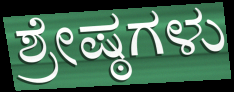
ಶ್ರೇಷ್ಠಗಳು